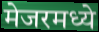
मेजरमध्ये